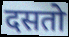
दसतो